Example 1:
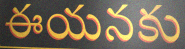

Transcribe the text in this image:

ఈయనకు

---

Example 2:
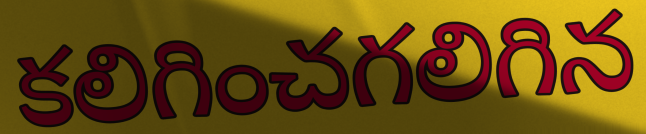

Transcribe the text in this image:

కలిగించగలిగిన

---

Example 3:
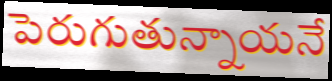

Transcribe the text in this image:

పెరుగుతున్నాయనే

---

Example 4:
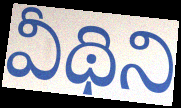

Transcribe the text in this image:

వీథిని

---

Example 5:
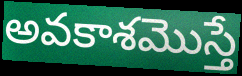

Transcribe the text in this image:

అవకాశమొస్తే